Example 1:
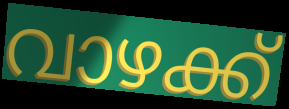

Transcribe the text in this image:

വാഴക്ക്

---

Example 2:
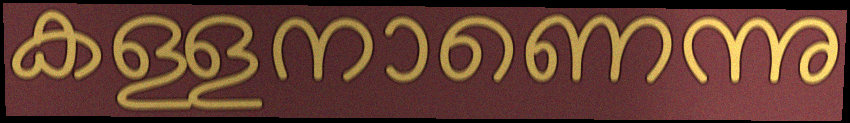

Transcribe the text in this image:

കള്ളനാണെന്നു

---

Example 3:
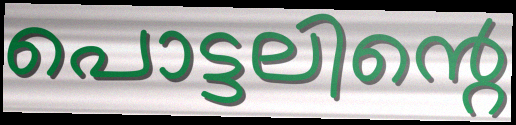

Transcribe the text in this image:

പൊട്ടലിന്റെ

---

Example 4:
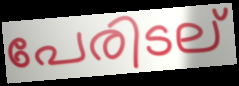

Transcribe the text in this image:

പേരിടല്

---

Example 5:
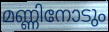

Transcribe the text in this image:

മണ്ണിനോടും